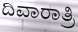
ದಿವಾರಾತ್ರಿ